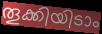
തൂക്കിയിടാം